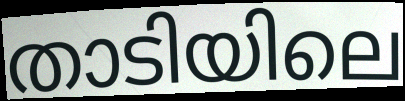
താടിയിലെ